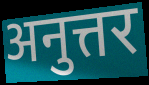
अनुत्तर